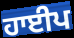
ਹਾਈਪ